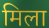
मिला